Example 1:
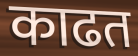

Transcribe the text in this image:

काढत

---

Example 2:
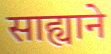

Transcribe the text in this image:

साह्याने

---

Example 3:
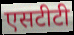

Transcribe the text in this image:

एसटीटी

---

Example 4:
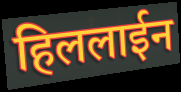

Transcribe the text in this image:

हिललाईन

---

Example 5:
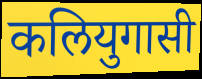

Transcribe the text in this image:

कलियुगासी